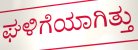
ಘಳಿಗೆಯಾಗಿತ್ತು